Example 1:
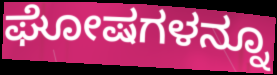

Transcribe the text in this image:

ಘೋಷಗಳನ್ನೂ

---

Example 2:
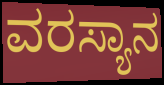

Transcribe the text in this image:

ವರಸ್ಯಾನ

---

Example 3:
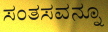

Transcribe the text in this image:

ಸಂತಸವನ್ನೂ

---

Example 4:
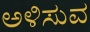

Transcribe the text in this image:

ಅಳಿಸುವ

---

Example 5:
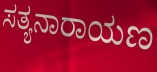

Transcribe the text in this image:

ಸತ್ಯನಾರಾಯಣ